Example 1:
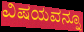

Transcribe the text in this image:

ವಿಷಯವನ್ನೂ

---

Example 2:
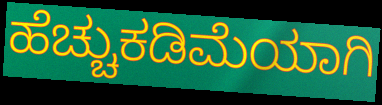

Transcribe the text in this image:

ಹೆಚ್ಚುಕಡಿಮೆಯಾಗಿ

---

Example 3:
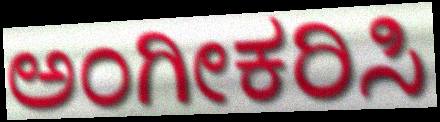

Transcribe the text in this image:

ಅಂಗೀಕರಿಸಿ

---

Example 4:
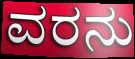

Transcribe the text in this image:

ವರನು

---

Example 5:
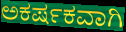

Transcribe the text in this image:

ಅಕರ್ಷಕವಾಗಿ